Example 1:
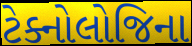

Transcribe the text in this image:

ટેક્નોલોજિના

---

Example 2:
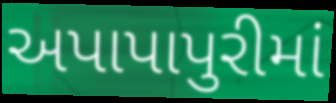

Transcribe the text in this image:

અપાપાપુરીમાં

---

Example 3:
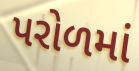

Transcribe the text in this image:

પરોળમાં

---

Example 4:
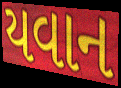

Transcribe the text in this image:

યવાન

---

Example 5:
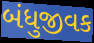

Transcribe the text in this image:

બંધુજીવક